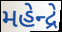
મહેન્દ્રે